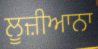
ਲੂਜ਼ੀਆਨਾ